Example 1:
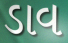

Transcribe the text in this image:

ડાવ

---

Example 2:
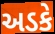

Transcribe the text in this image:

અડકે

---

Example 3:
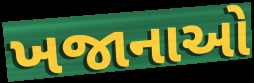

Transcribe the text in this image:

ખજાનાઓ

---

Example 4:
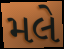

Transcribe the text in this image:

મલે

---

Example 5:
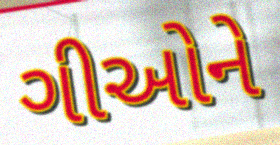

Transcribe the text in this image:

ગીઓને